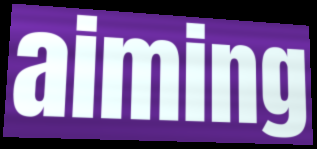
aiming